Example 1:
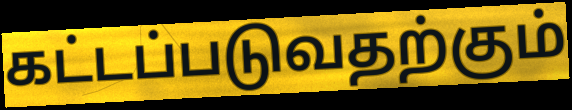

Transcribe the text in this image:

கட்டப்படுவதற்கும்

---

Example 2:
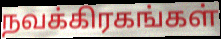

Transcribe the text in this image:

நவக்கிரகங்கள்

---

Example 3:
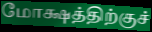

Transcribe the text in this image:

மோக்ஷத்திற்குச்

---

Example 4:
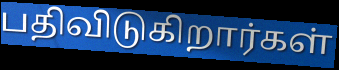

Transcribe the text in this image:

பதிவிடுகிறார்கள்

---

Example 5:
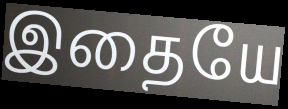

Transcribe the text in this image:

இதையே